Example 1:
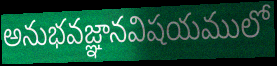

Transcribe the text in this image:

అనుభవజ్ఞానవిషయములో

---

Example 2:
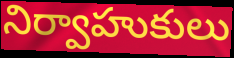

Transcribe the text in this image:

నిర్వాహుకులు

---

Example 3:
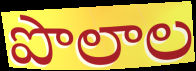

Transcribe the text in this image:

పొలాల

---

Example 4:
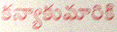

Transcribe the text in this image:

కన్యాకుమారికి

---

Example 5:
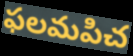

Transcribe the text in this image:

ఫలమపిచ